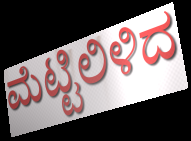
ಮೆಟ್ಟಿಲಿಳಿದ